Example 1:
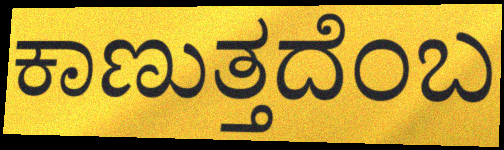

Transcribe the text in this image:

ಕಾಣುತ್ತದೆಂಬ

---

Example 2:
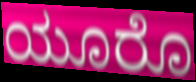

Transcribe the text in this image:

ಯೂರೊ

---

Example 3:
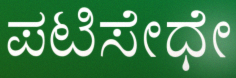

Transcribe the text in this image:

ಪಟಿಸೇಧೇ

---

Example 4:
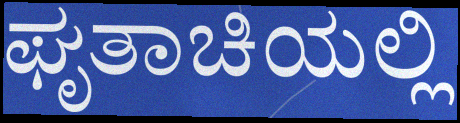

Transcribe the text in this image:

ಘೃತಾಚಿಯಲ್ಲಿ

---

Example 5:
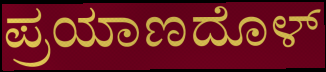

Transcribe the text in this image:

ಪ್ರಯಾಣದೊಳ್